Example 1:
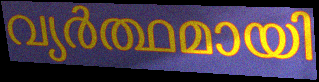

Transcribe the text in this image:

വ്യർത്ഥമായി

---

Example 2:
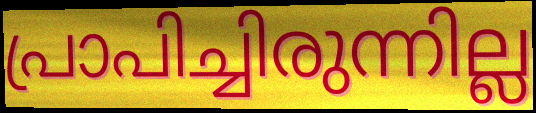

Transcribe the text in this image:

പ്രാപിച്ചിരുന്നില്ല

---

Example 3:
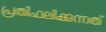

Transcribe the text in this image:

പ്രതിഫലിക്കുന്നത്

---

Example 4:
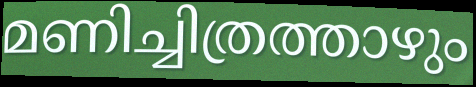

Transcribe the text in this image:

മണിച്ചിത്രത്താഴും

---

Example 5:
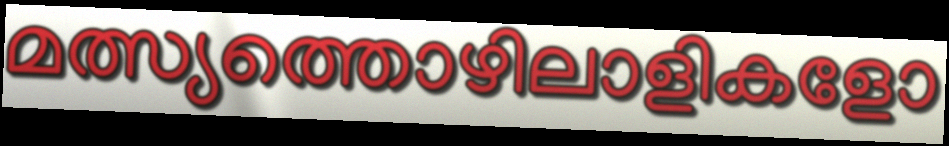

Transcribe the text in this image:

മത്സ്യത്തൊഴിലാളികളോ